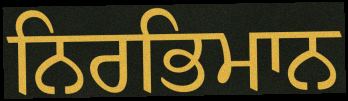
ਨਿਰਭਿਮਾਨ